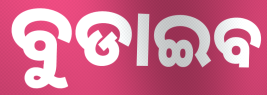
ବୁଡାଇବ